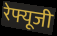
रेफ्यूजी